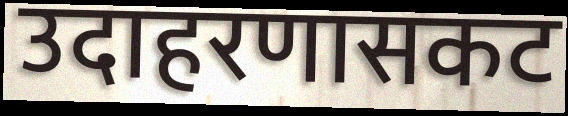
उदाहरणासकट